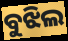
ବୁଝିଲ